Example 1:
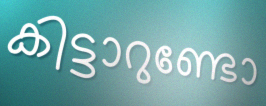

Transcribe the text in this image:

കിട്ടാറുണ്ടോ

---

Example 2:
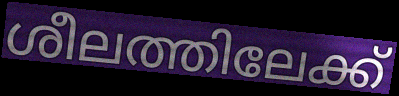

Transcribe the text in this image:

ശീലത്തിലേക്ക്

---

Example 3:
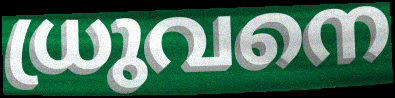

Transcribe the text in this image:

ധ്രുവനെ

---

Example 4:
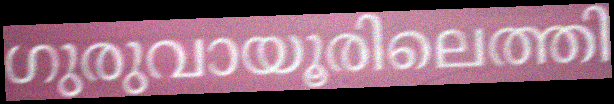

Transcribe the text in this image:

ഗുരുവായൂരിലെത്തി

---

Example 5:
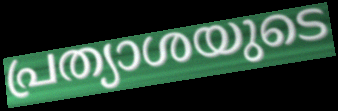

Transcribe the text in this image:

പ്രത്യാശയുടെ